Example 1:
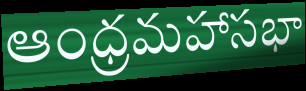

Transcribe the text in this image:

ఆంధ్రమహాసభా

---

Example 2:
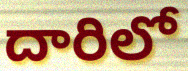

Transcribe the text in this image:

దారిలో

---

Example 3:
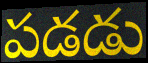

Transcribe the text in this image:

పడడు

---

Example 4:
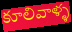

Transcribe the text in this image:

కూలివాళ్ళ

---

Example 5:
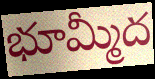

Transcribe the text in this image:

భూమ్మీద